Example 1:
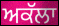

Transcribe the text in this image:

ਅਕੱਲਾ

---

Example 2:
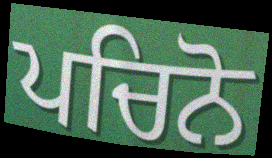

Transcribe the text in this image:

ਪਚਿਨੋ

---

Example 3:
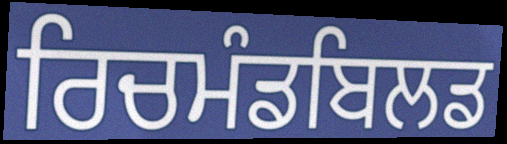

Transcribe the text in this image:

ਰਿਚਮੰਡਬਿਲਡ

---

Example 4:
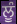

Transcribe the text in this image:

ਲੂੰ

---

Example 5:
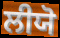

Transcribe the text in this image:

ਲੀਯੋ